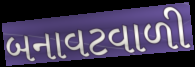
બનાવટવાળી